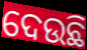
ଦେଉଛି